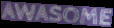
AWASOME